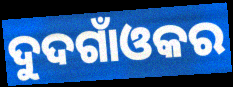
ଦୁଦଗାଁଓକର